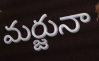
మర్జునా